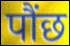
पौंछ